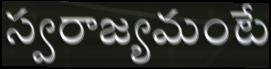
స్వరాజ్యమంటే